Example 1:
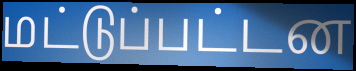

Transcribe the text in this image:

மட்டுப்பட்டன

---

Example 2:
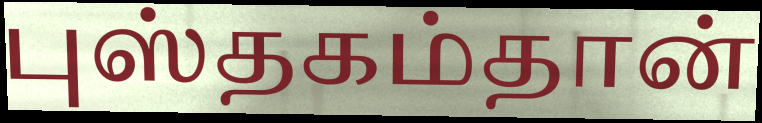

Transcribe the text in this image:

புஸ்தகம்தான்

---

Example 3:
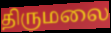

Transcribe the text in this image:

திருமலை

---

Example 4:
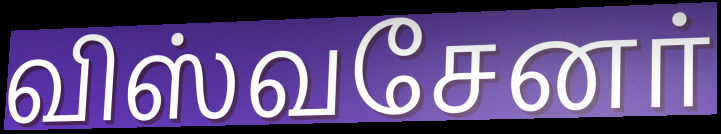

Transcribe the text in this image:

விஸ்வசேனர்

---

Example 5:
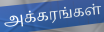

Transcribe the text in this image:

அக்கரங்கள்